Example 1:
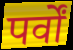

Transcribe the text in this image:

पर्वों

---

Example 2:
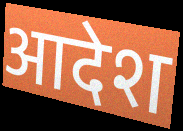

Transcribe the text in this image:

आदेश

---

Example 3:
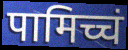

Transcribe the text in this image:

पामिच्चं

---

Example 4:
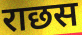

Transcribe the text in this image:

राछस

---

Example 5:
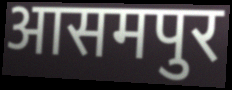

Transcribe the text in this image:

आसमपुर